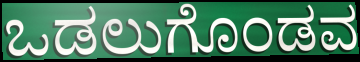
ಒಡಲುಗೊಂಡವ